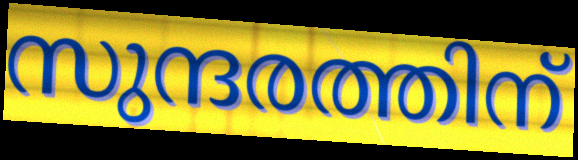
സുന്ദരത്തിന്